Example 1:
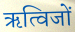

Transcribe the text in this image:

ऋत्विजों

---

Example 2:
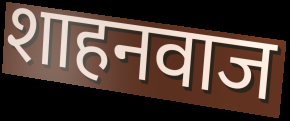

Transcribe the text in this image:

शाहनवाज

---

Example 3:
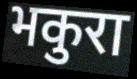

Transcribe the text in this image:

भकुरा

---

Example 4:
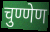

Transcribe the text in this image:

चुण्णेण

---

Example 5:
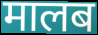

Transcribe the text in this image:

मालब